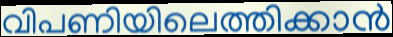
വിപണിയിലെത്തിക്കാൻ